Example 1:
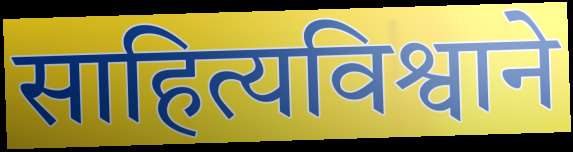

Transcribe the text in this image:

साहित्यविश्वाने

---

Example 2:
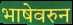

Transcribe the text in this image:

भाषेवरुन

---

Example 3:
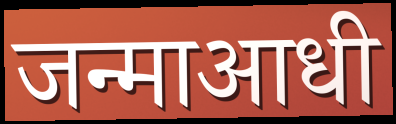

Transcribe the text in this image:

जन्माआधी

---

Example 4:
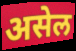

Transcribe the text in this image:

असेल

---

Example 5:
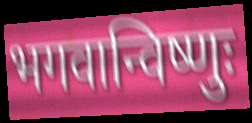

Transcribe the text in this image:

भगवान्विष्णुः